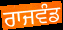
ਰਾਜਵੰਡ